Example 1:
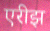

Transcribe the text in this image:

एरीझ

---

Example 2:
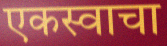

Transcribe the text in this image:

एकस्वाचा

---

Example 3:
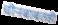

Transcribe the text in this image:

चीनबाबतही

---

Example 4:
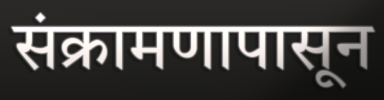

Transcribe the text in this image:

संक्रामणापासून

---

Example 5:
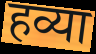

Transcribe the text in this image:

हव्या